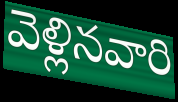
వెళ్లినవారి